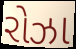
રોઝા